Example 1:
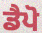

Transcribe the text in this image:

ਡੈਪੋ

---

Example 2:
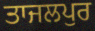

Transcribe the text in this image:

ਤਾਜਲਪੁਰ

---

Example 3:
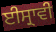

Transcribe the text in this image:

ਈਸ੍ਰਾਵੀ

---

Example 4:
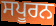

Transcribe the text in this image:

ਸਪੂਰਨ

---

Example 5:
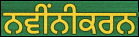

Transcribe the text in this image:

ਨਵੀਂਨੀਕਰਨ